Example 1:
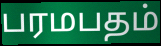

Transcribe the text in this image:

பரமபதம்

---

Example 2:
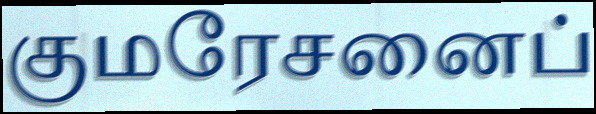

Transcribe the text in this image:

குமரேசனைப்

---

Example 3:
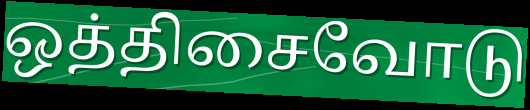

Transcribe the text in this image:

ஒத்திசைவோடு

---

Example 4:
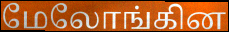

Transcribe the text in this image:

மேலோங்கின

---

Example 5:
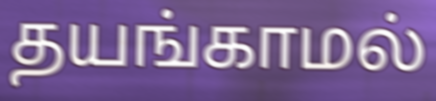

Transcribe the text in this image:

தயங்காமல்